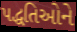
પદ્ધતિઓને